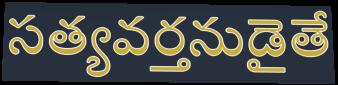
సత్యవర్తనుడైతే